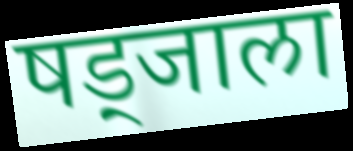
षड्जाला